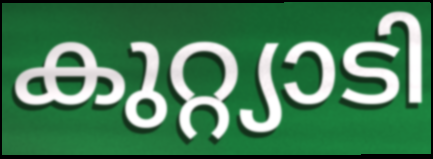
കുറ്റ്യാടി